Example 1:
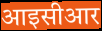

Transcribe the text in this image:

आइसीआर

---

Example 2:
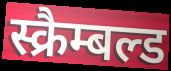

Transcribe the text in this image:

स्क्रैम्बल्ड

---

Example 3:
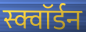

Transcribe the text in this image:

स्क्वॉर्डन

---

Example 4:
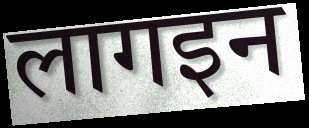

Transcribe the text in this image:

लागइन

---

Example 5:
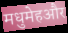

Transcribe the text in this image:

मधुमेहऔर